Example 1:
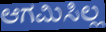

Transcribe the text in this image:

ಆಗಮಿಸಿಲ್ಲ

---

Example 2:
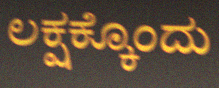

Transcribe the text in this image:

ಲಕ್ಷಕ್ಕೊಂದು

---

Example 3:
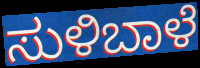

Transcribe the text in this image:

ಸುಳಿಬಾಳೆ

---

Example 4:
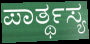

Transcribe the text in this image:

ಪಾರ್ತ್ಥಸ್ಯ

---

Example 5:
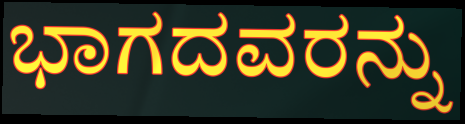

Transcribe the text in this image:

ಭಾಗದವರನ್ನು